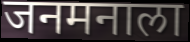
जनमनाला